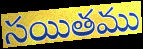
సయితము